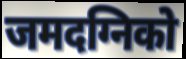
जमदग्निको